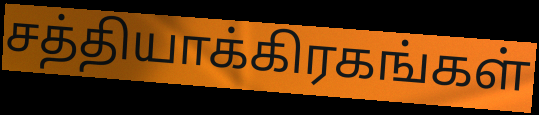
சத்தியாக்கிரகங்கள்